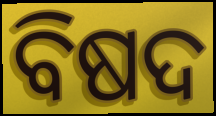
ବିଷଦ